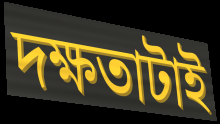
দক্ষতাটাই